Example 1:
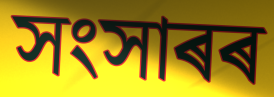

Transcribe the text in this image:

সংসাৰৰ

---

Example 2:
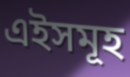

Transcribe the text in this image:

এইসমূহ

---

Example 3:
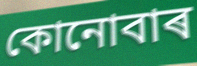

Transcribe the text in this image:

কোনোবাৰ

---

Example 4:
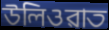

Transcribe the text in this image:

উলিওৱাত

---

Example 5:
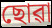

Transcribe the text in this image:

ছোৱা